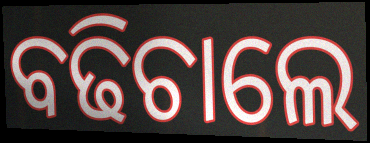
ବଢିଚାଲେ